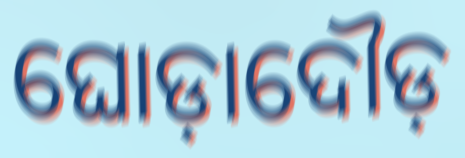
ଘୋଡ଼ାଦୌଡ଼